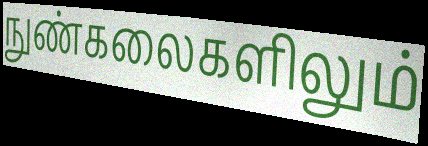
நுண்கலைகளிலும்